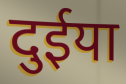
दुईया